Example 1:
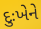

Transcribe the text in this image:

દુઃખેને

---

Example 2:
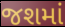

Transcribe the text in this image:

જશમાં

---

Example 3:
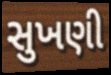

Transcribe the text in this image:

સુખણી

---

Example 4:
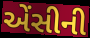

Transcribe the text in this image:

એંસીની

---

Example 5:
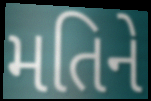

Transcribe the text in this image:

મતિને